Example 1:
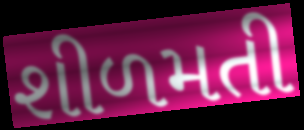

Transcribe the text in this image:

શીળમતી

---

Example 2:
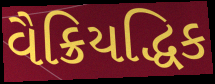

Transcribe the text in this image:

વૈક્રિયદ્ધિક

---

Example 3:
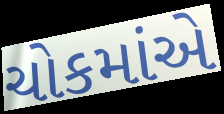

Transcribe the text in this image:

ચોકમાંએ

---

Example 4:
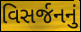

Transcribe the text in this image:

વિસર્જનનું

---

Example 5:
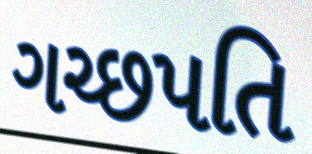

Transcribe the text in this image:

ગચ્છપતિ